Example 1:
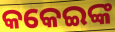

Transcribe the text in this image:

କକେଇଙ୍କ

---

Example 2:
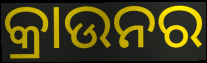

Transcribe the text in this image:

କ୍ରାଉନର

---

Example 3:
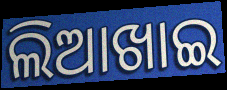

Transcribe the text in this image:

ଲିଆଖାଇ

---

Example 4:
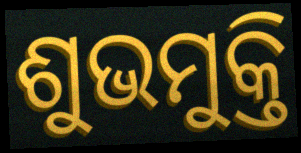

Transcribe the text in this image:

ଶୁଭମୁକ୍ତି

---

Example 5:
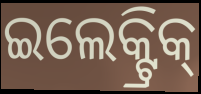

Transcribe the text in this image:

ଇଲେକ୍ଟ୍ରିକ୍